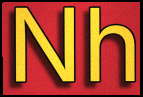
Nh